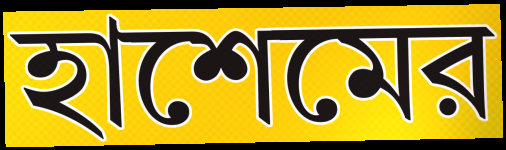
হাশেমের